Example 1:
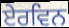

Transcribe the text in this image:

ਏਰਵਿਨ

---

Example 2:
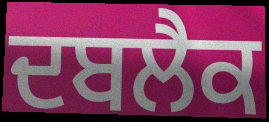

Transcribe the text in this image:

ਦਬਲੈਕ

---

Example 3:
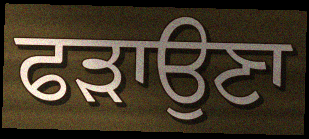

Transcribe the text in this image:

ਫੜਾਉਣਾ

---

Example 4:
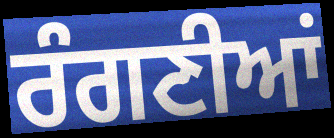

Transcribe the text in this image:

ਰੰਗਣੀਆਂ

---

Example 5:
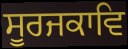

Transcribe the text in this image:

ਸੂਰਜਕਾਵਿ